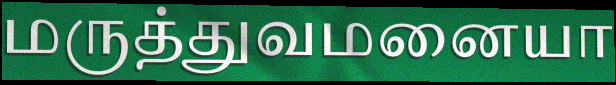
மருத்துவமனையா